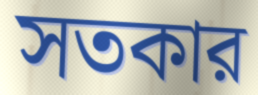
সতকার